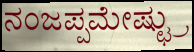
ನಂಜಪ್ಪಮೇಷ್ಟ್ರು